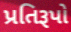
પ્રતિરૂપો